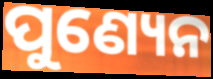
ପୁଣ୍ୟେନ